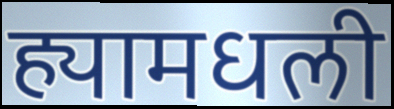
ह्यामधली